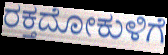
ರಕ್ತದೋಕುಳಿಗೆ